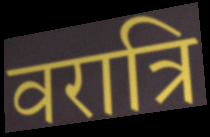
वरात्रि